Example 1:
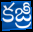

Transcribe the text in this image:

కజ్రీ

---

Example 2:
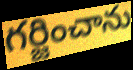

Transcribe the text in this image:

గర్జించాను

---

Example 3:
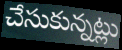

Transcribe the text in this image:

చేసుకున్నట్లు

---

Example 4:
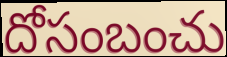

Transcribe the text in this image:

దోసంబంచు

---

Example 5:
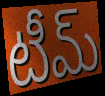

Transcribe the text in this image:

టీమ్